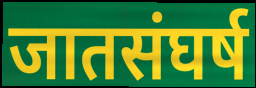
जातसंघर्ष